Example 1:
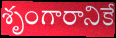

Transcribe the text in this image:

శృంగారానికే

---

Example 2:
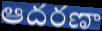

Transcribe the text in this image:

ఆదరణా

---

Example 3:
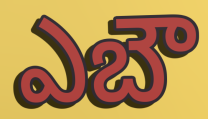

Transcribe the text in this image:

ఎబౌ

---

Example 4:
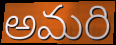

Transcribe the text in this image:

అమరి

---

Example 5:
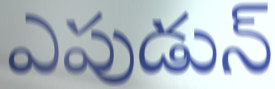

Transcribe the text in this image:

ఎపుడున్